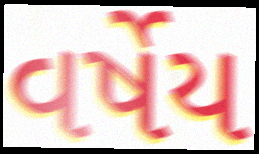
વર્ષેય